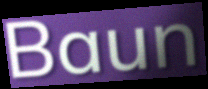
Baun